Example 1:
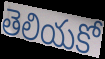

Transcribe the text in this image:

తెలియకో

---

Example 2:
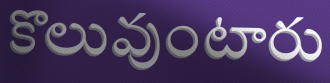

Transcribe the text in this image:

కొలువుంటారు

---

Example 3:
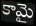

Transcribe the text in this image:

కామై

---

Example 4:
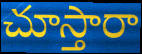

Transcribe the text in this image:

చూస్తారా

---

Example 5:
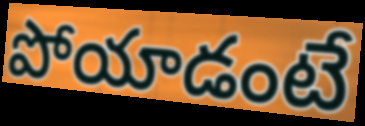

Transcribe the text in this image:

పోయాడంటే